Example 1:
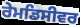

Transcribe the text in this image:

ਰੇਮਡਿਸੀਵਰ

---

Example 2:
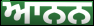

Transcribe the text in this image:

ਆਨਨ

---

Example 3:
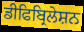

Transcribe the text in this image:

ਡੀਫਿਬ੍ਰਿਲੇਸ਼ਨ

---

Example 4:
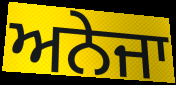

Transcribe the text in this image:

ਅਨੇਜਾ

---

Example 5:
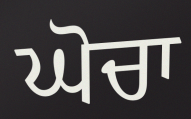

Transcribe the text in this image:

ਘੋਚਾ